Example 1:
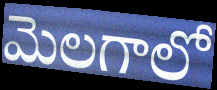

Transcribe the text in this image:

మెలగాలో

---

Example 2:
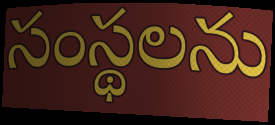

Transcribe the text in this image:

సంస్థలను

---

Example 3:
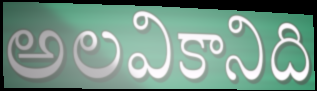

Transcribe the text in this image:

అలవికానిది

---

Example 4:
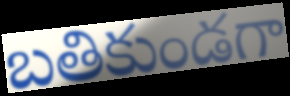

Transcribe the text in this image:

బతికుండగా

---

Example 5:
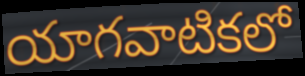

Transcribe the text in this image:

యాగవాటికలో